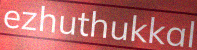
ezhuthukkal